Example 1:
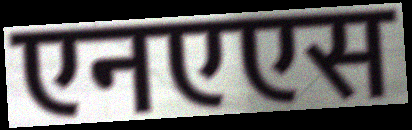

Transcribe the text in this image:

एनएएस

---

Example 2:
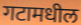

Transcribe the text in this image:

गटामधील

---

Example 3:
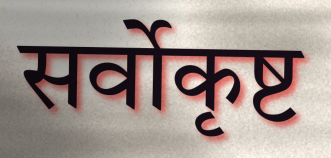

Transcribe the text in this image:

सर्वोकृष्ट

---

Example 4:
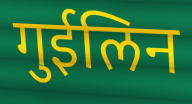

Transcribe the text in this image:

गुईलिन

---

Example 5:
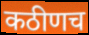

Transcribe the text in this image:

कठीणच